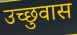
उच्छुवास